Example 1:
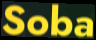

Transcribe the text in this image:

Soba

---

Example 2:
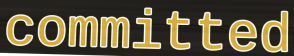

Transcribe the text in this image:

committed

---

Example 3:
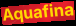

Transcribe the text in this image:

Aquafina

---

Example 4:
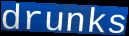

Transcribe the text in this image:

drunks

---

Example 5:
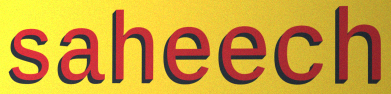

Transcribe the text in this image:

saheech